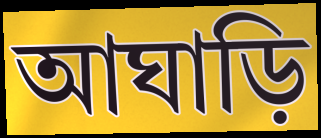
আঘাড়ি